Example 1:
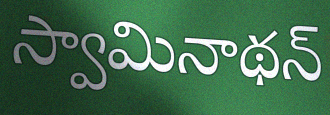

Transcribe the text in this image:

స్వామినాథన్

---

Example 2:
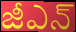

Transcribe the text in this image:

జీఎన్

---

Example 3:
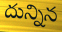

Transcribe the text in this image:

దున్నిన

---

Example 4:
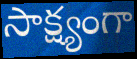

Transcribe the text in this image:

సాక్ష్యంగా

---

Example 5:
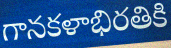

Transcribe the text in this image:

గానకళాభిరతికి